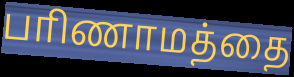
பரிணாமத்தை